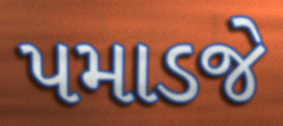
પમાડજે